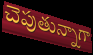
చెపుతున్నాగా